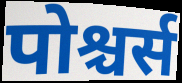
पोश्चर्स